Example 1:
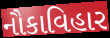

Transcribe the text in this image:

નૌકાવિહાર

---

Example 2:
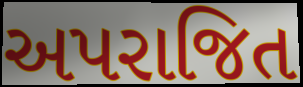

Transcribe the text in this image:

અપરાજિત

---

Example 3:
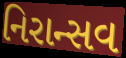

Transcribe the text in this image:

નિરાન્સવ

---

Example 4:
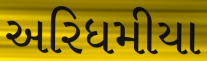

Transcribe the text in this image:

અરિધમીયા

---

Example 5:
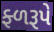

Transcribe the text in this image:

ફ્ળરૂપે